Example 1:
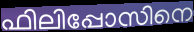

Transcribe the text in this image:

ഫിലിപ്പോസിനെ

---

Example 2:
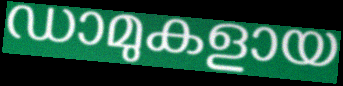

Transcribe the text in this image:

ഡാമുകളായ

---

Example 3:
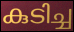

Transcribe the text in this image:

കുടിച്ച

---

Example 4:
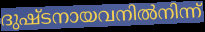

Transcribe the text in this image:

ദുഷ്ടനായവനിൽനിന്ന്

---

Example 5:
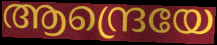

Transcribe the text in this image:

ആന്ദ്രെയേ